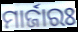
ମାର୍ଜାରଃ